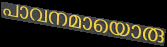
പാവനമായൊരു